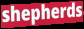
shepherds